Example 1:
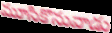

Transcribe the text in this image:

మూసికొనువాడు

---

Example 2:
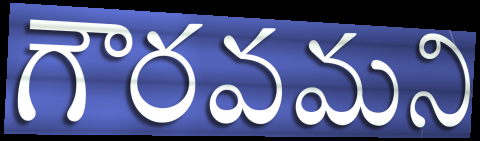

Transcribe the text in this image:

గౌరవమని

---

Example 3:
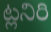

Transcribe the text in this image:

ట్లనిరి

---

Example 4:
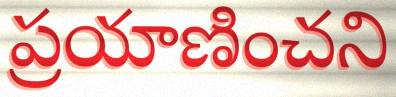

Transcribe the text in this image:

ప్రయాణించని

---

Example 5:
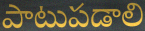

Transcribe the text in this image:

పాటుపడాలి